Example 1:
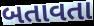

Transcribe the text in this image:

બતાવતા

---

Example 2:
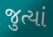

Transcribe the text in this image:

જુત્યાં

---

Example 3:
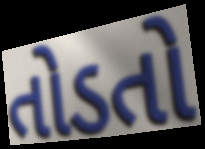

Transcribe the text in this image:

તોડતો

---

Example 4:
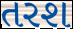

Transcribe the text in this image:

તરશ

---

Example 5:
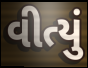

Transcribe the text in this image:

વીત્યું